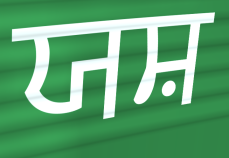
ਯਸ਼